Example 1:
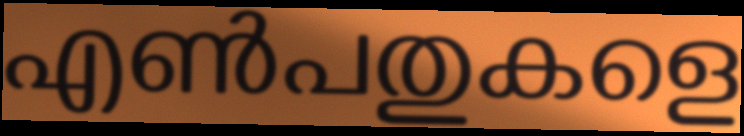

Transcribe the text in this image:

എൺപതുകളെ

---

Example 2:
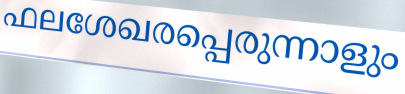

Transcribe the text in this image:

ഫലശേഖരപ്പെരുന്നാളും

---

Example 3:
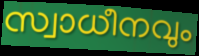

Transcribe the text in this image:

സ്വാധീനവും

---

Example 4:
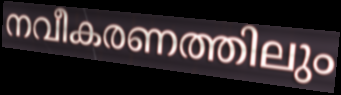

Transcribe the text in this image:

നവീകരണത്തിലും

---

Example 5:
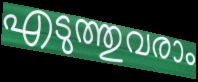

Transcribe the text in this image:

എടുത്തുവരാം